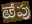
ఱేపు